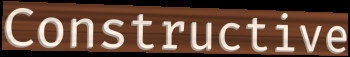
Constructive